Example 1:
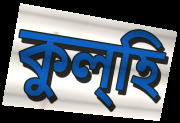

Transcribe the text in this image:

কুল্হি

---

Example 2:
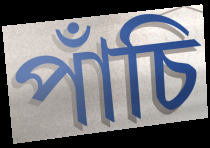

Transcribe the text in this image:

পাঁচি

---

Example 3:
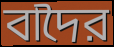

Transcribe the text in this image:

বাদৈর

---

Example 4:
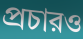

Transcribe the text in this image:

প্রচারও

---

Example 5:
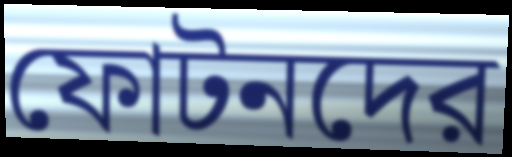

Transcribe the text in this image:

ফোটনদের